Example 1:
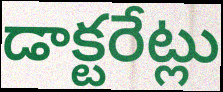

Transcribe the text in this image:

డాక్టరేట్లు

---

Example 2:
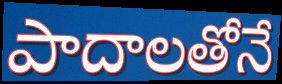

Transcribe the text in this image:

పాదాలతోనే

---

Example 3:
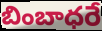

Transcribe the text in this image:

బింబాధరే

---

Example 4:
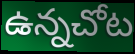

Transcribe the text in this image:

ఉన్నచోట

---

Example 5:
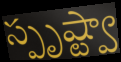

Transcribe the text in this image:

స్పృష్ట్వా